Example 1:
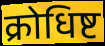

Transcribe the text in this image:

क्रोधिष्ट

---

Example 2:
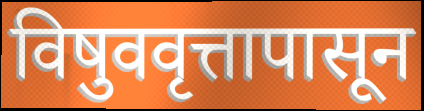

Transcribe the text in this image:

विषुववृत्तापासून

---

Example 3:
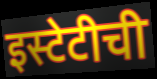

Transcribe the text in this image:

इस्टेटीची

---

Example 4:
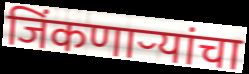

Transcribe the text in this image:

जिंकणाऱ्यांचा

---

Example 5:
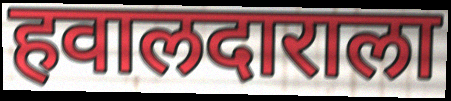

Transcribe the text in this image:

हवालदाराला